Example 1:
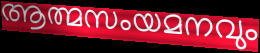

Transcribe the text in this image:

ആത്മസംയമനവും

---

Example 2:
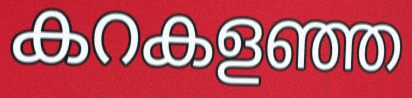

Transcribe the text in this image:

കറകളഞ്ഞ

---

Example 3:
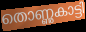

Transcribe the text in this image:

തൊണ്ണുകാട്ടി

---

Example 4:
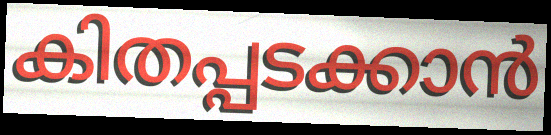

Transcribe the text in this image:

കിതപ്പടക്കാൻ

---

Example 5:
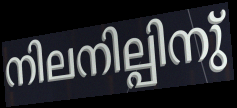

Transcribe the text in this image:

നിലനില്പിനു്